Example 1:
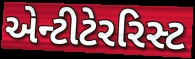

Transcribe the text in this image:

એન્ટીટેરરિસ્ટ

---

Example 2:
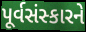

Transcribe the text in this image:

પૂર્વસંસ્કારને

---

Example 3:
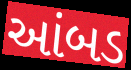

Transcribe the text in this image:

આંબડ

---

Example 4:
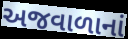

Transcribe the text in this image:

અજવાળાનાં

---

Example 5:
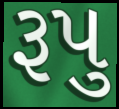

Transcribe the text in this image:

રૂપુ